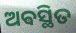
ଅଵସ୍ଥିତ